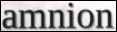
amnion